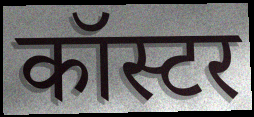
कॉस्टर